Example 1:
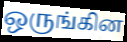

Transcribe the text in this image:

ஒருங்கின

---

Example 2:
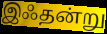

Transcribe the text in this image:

இஃதன்று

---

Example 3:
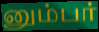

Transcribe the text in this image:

னும்பர்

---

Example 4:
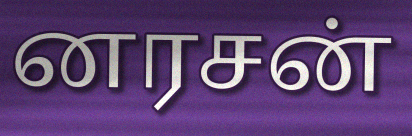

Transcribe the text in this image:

னரசன்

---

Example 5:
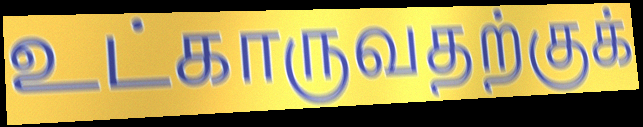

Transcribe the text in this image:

உட்காருவதற்குக்